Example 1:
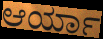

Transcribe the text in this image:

ಆರ್ಯಾ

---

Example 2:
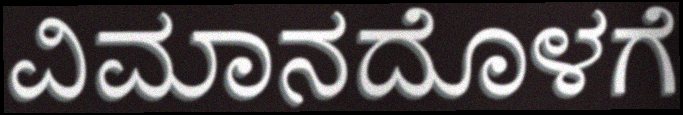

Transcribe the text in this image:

ವಿಮಾನದೊಳಗೆ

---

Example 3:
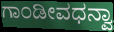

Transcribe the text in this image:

ಗಾಂಡೀವಧನ್ವಾ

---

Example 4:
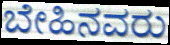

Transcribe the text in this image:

ಬೇಹಿನವರು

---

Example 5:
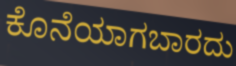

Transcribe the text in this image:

ಕೊನೆಯಾಗಬಾರದು